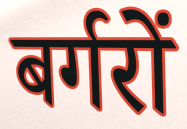
बर्गरों